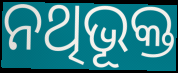
ନଥିଭୂକ୍ତ